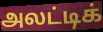
அலட்டிக்